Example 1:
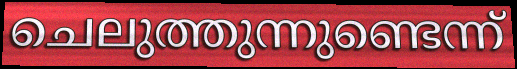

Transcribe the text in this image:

ചെലുത്തുന്നുണ്ടെന്ന്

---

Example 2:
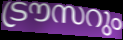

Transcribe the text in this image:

ട്രൗസറും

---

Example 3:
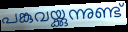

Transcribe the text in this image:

പങ്കുവയ്ക്കുന്നുണ്ട്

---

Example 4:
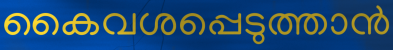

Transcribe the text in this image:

കൈവശപ്പെടുത്താൻ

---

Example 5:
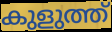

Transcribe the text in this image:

കുളുത്ത്